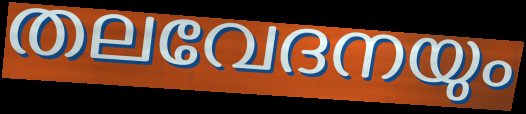
തലവേദനയും